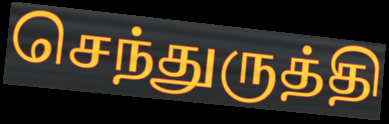
செந்துருத்தி